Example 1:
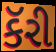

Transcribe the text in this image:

કૅરી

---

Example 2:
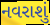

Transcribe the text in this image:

નવરાશું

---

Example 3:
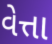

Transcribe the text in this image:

વેત્તા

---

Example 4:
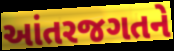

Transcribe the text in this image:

આંતરજગતને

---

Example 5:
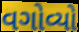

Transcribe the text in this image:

વગોવ્યો